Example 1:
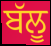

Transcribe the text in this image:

ਬੱਲੂ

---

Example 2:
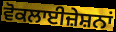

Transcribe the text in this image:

ਵੋਕਲਾਈਜ਼ੇਸ਼ਨਾਂ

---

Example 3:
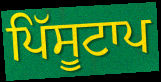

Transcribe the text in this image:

ਪਿੱਸੂਟਾਪ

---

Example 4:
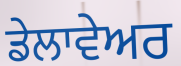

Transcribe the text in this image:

ਡੇਲਾਵੇਅਰ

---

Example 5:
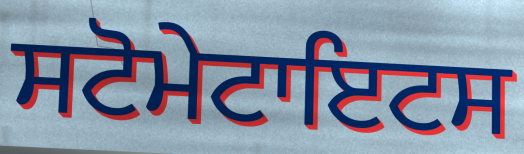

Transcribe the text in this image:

ਸਟੋਮੇਟਾਇਟਸ